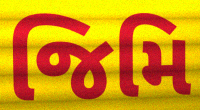
જિમિ